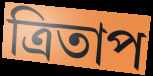
ত্রিতাপ